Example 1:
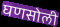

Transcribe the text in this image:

घणसोली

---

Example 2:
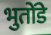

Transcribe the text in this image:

भुतोंडे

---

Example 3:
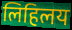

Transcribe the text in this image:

लिहिलय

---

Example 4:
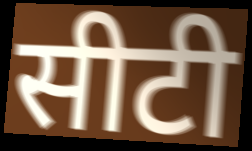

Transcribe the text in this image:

सीटी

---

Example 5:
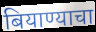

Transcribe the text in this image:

बियाण्याचा